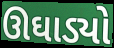
ઊઘાડ્યો